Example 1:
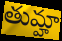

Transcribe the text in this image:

తుమ్హా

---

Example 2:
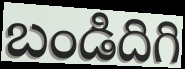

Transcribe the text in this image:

బండిదిగి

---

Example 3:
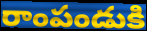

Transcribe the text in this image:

రాంపండుకి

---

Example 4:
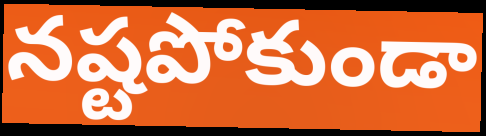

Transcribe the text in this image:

నష్టపోకుండా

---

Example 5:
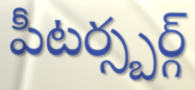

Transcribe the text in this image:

పీటర్స్బర్గ్